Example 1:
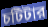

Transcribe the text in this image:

চটিটার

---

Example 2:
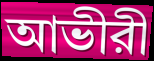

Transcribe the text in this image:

আভীরী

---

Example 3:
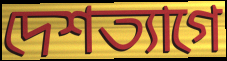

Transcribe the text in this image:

দেশত্যাগে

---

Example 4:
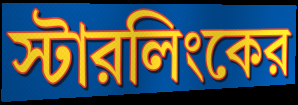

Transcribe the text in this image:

স্টারলিংকের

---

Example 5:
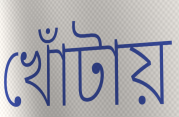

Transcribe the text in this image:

খোঁটায়